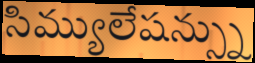
సిమ్యులేషన్స్ను